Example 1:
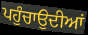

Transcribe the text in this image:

ਪਹੁੰਚਾਉਦੀਆਂ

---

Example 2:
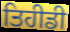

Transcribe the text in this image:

ਤਿਹੀਡੀ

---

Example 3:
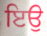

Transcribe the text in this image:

ਇਉ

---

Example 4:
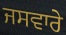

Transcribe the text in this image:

ਜਸਵਾਰੇ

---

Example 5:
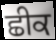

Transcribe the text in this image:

ਛੀਕ